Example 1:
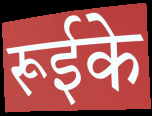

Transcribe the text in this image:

रूईके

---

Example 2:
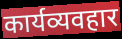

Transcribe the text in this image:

कार्यव्यवहार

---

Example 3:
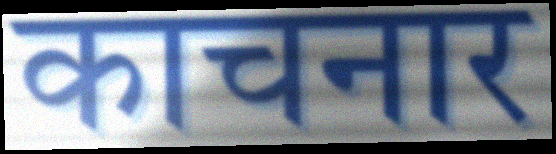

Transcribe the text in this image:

काचनार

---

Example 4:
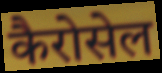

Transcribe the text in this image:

कैरोसेल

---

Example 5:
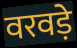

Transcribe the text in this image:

वरवड़े